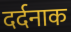
दर्दनाक